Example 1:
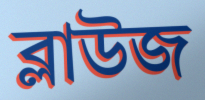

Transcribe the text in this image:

ব্লাউজ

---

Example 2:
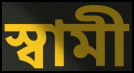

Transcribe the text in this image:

স্বামী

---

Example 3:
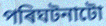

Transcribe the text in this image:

পৰিঘটনাটো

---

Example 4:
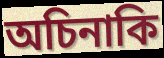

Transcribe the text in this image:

অচিনাকি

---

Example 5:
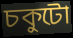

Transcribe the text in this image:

চকুটো